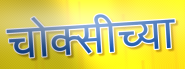
चोक्सीच्या